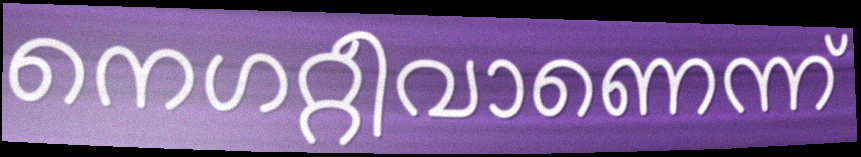
നെഗറ്റീവാണെന്ന്